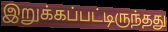
இறுக்கப்பட்டிருந்தது